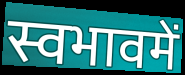
स्वभावमें